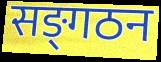
सङ्गठन